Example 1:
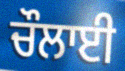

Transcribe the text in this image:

ਚੌਲਾਈ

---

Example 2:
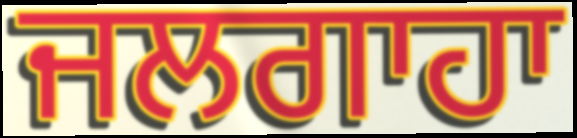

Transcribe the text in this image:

ਜਲਗਾਹਾ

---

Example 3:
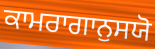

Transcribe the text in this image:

ਕਾਮਰਾਗਾਨੁਸਯੋ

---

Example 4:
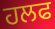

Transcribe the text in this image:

ਹਲਫ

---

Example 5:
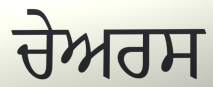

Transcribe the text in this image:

ਚੇਅਰਸ